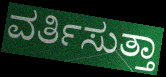
ವರ್ತಿಸುತ್ತಾ